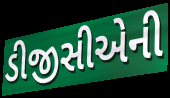
ડીજીસીએની